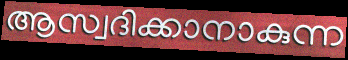
ആസ്വദിക്കാനാകുന്ന